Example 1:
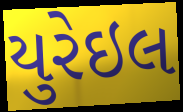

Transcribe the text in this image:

યુરેઇલ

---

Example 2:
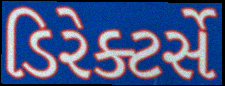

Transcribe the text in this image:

ડિરેક્ટર્સે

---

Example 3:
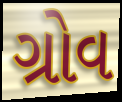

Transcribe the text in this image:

ગ્રોવ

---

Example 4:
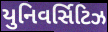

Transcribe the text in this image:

યુનિવર્સિટિઝ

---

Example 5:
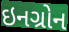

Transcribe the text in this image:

ઇનગ્રોન